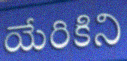
యేరికిని